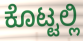
ಕೊಟ್ಟಲ್ಲಿ